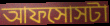
আফসোসটা